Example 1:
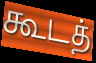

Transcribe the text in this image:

கூடத்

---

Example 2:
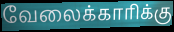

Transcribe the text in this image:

வேலைக்காரிக்கு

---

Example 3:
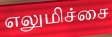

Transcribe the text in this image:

எலுமிச்சை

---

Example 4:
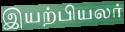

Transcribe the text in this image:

இயற்பியலர்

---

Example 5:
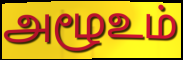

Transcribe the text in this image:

அழூஉம்